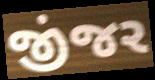
જીંજર